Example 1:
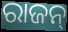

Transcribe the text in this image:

ରାଜନ୍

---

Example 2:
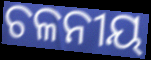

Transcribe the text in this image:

ଚଳନୀୟ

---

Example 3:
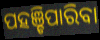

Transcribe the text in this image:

ପହଞ୍ଚିପାରିବା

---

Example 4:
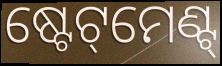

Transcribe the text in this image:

ଷ୍ଟେଟ୍‌ମେଣ୍ଟ୍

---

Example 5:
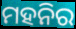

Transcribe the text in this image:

ମହନିର